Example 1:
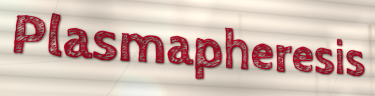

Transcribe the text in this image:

Plasmapheresis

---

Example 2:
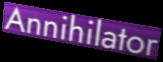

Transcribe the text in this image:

Annihilator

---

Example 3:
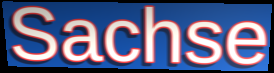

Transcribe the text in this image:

Sachse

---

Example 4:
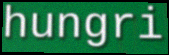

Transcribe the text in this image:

hungri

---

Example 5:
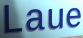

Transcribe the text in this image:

Laue